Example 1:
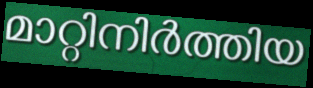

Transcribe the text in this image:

മാറ്റിനിർത്തിയ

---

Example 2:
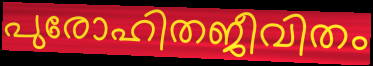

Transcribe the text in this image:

പുരോഹിതജീവിതം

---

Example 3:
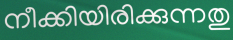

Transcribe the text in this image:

നീക്കിയിരിക്കുന്നതു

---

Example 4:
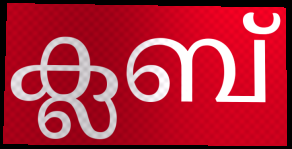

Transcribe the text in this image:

ക്ലബ്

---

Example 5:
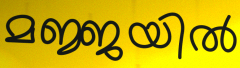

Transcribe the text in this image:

മജ്ജയിൽ